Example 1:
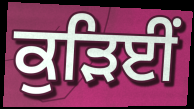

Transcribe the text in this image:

ਕੁੜਿਈਂ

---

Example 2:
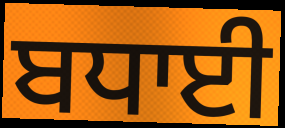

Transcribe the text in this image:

ਬਧਾਈ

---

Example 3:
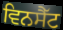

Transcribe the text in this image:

ਵਿਨਸੈੱਟ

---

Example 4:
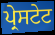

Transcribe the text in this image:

ਪ੍ਰੇਸਟੇਟ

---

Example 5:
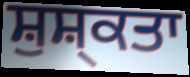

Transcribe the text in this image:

ਸ਼ੁਸ਼੍ਕਤਾ